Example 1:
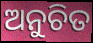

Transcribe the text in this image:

ଅନୁଚିତ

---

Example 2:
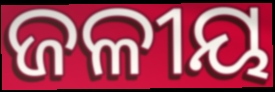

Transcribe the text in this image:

ଜଳୀୟ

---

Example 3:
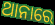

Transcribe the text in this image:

ଥାନାରେ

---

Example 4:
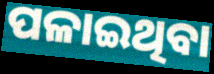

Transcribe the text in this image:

ପଳାଇଥିବା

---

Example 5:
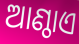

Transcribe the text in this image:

ଆଣ୍ଠାଏ